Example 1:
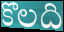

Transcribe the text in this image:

కొలది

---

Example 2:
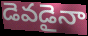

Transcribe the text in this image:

డెవడైనా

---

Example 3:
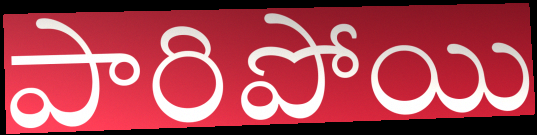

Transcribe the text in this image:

పారిపోయి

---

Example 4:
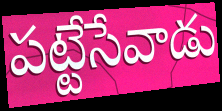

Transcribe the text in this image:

పట్టేసేవాడు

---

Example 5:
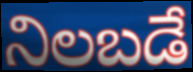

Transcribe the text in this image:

నిలబడే